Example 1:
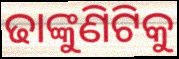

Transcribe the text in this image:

ଢାଙ୍କୁଣିଟିକୁ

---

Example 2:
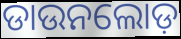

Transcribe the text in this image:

ଡାଉନଲୋଡ଼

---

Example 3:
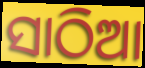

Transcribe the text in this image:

ସାଠିଆ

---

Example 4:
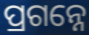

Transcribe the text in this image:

ପ୍ରଗନ୍ନେ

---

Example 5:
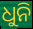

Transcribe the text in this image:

ଧୁନି